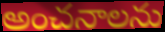
అంచనాలను